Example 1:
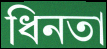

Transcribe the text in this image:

ধিনতা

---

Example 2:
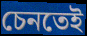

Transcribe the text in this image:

চেনতেই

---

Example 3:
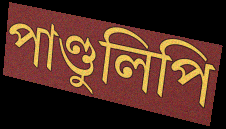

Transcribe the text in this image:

পাণ্ডুলিপি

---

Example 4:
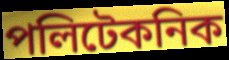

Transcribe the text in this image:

পলিটেকনিক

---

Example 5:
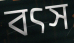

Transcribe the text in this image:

বৎস